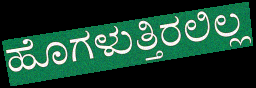
ಹೊಗಳುತ್ತಿರಲಿಲ್ಲ